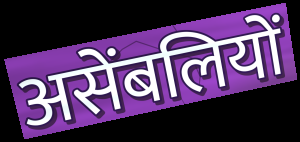
असेंबलियों